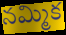
నమ్మిక